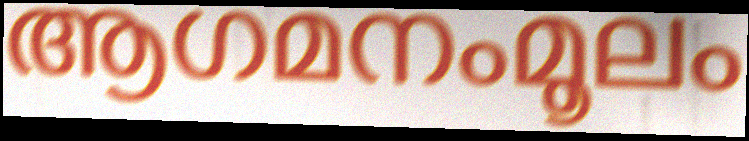
ആഗമനംമൂലം